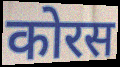
कोरस